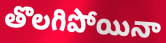
తొలగిపోయినా